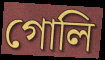
গোলি